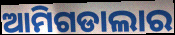
ଆମିଗଡାଲାର